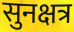
सुनक्षत्र